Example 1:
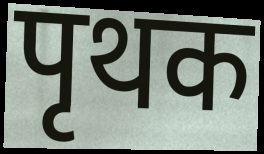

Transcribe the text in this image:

पृथक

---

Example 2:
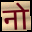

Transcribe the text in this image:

नो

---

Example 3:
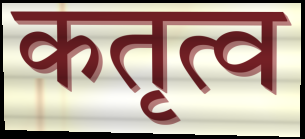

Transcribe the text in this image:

कतृत्व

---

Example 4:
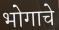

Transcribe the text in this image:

भोगाचे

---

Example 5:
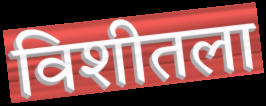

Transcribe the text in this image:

विशीतला